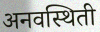
अनवस्थिती